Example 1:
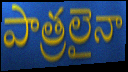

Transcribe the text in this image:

పాత్రలైనా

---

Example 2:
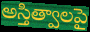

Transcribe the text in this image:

అస్తిత్వాలపై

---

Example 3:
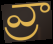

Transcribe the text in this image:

వ్రా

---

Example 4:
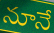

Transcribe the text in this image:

నూనే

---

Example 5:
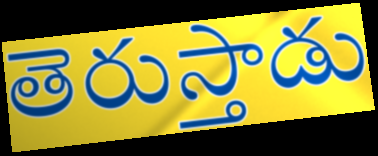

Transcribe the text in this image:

తెరుస్తాడు